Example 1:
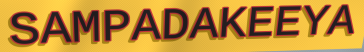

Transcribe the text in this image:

SAMPADAKEEYA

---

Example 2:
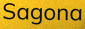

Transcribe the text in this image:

Sagona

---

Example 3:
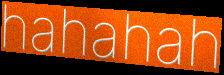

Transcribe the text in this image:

hahahah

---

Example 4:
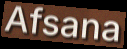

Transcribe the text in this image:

Afsana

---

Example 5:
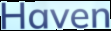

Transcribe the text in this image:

Haven